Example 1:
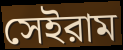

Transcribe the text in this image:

সেইরাম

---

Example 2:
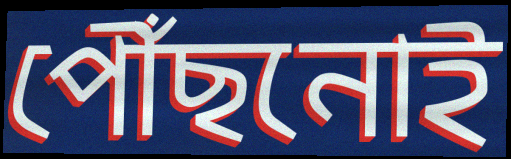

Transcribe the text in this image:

পৌঁছনোই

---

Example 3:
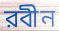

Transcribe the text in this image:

রবীন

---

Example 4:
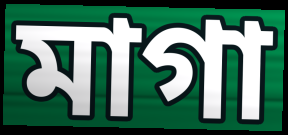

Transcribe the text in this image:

মাগা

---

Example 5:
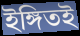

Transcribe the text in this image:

ইঙ্গিতই